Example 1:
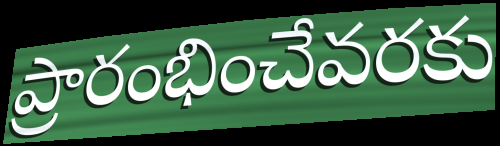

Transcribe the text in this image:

ప్రారంభించేవరకు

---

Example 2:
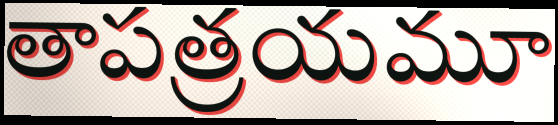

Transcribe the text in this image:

తాపత్రయమూ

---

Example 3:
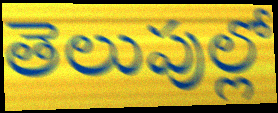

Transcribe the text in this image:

తెలుపుల్లో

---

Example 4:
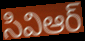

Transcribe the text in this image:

సివిఆర్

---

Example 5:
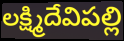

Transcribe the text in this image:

లక్ష్మిదేవిపల్లి